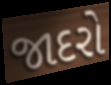
જાદરો